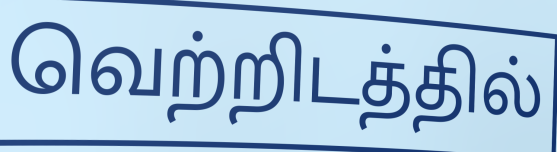
வெற்றிடத்தில்